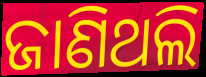
ଜାଣିଥଲି